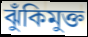
ঝুঁকিমুক্ত